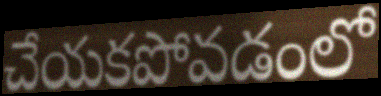
చేయకపోవడంలో